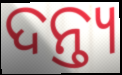
ଦନ୍ତ୍ଯ